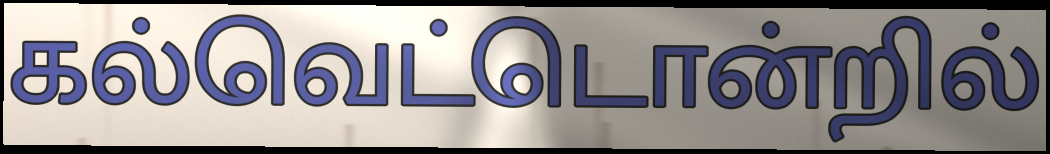
கல்வெட்டொன்றில்